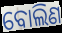
ବୋଲିଣ